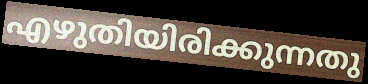
എഴുതിയിരിക്കുന്നതു